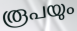
രൂപയും